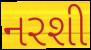
નરશી